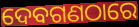
ଦେବଗଣଠାରେ